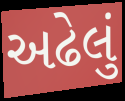
અઢેલું